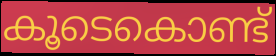
കൂടെകൊണ്ട്